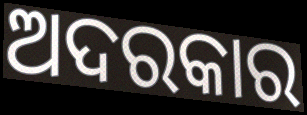
ଅଦରକାର